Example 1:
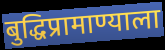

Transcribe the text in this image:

बुद्धिप्रामाण्याला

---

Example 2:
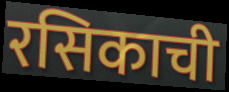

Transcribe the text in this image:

रसिकाची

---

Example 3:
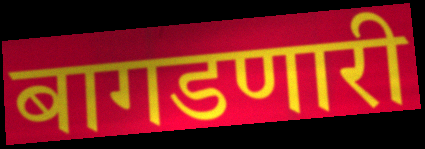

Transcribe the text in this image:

बागडणारी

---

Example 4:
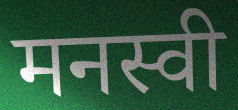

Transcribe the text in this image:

मनस्वी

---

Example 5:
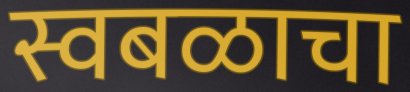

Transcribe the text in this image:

स्वबळाचा